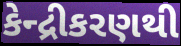
કેન્દ્રીકરણથી